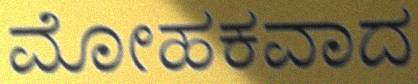
ಮೋಹಕವಾದ